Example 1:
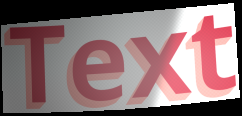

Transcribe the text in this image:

Text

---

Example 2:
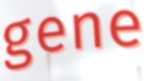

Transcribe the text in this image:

gene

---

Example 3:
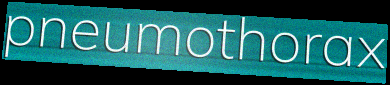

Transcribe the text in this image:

pneumothorax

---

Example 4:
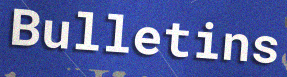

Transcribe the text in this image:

Bulletins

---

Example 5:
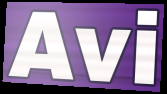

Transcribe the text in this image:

Avi